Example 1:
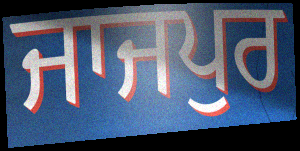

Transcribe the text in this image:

ਜਾਜਪੁਰ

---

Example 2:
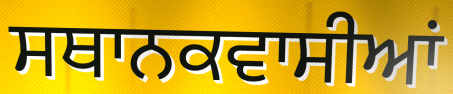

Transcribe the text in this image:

ਸਥਾਨਕਵਾਸੀਆਂ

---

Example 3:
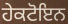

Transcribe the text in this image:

ਹੇਕਟੋਇਨ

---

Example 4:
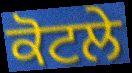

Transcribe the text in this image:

ਕੋਟਲੇ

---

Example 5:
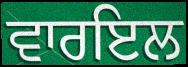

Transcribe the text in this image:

ਵਾਰਇਲ